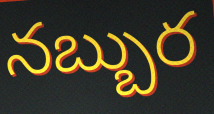
నబ్బుర